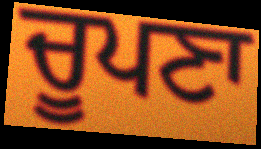
ਚੂਪਣਾ